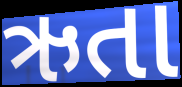
ઋતા